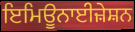
ਇਮਿਊਨਾਈਜ਼ੇਸ਼ਨ